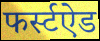
फर्स्टऐड